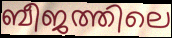
ബീജത്തിലെ